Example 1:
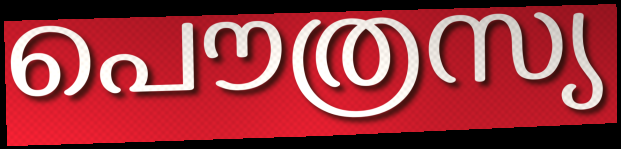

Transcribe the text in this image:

പൌത്രസ്യ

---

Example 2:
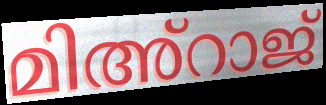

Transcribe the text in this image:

മിഅ്റാജ്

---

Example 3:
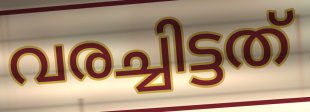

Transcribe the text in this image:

വരച്ചിട്ടത്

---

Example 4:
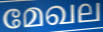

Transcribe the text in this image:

മേഖല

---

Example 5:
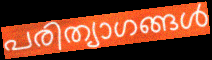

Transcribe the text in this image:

പരിത്യാഗങ്ങൾ